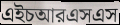
এইচআরএসএস